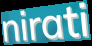
nirati